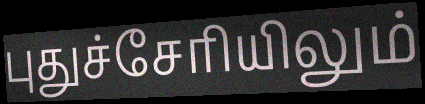
புதுச்சேரியிலும்